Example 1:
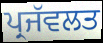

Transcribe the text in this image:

ਪ੍ਰਜੱਵਲਤ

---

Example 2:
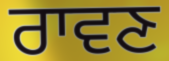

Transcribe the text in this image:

ਰਾਵਣ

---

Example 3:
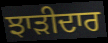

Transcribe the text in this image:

ਝਾੜੀਦਾਰ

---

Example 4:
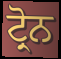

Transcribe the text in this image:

ਟ੍ਰੋਨ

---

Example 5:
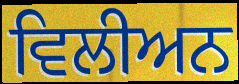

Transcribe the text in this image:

ਵਿਲੀਅਨ